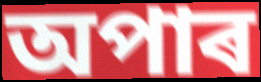
অপাৰ